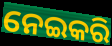
ନେଇକରି